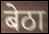
बेठा